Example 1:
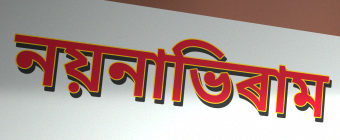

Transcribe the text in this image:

নয়নাভিৰাম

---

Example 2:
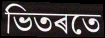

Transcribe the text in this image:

ভিতৰতে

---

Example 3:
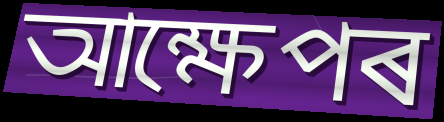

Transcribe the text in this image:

আক্ষেপৰ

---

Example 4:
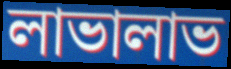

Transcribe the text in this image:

লাভালাভ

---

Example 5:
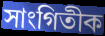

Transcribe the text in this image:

সাংগিতীক